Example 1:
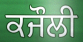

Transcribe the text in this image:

ਕਜੌਲੀ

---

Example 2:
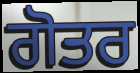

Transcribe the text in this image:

ਗੋਤਰ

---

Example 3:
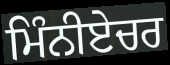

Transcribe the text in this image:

ਮਿੰਨੀਏਚਰ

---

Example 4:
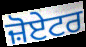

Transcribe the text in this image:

ਜ਼ੋਏਟਰ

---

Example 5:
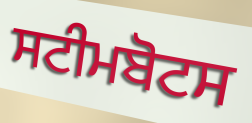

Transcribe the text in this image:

ਸਟੀਮਬੋਟਸ